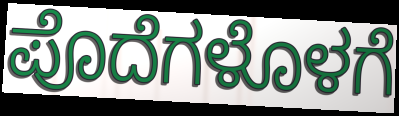
ಪೊದೆಗಳೊಳಗೆ